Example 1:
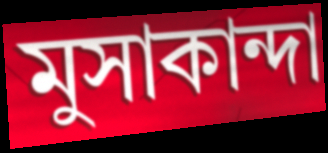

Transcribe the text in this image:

মুসাকান্দা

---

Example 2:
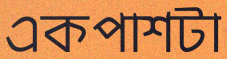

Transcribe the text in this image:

একপাশটা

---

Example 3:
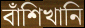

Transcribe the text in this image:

বাঁশিখানি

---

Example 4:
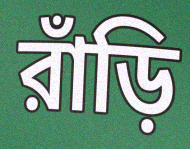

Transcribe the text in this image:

রাঁড়ি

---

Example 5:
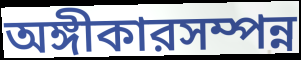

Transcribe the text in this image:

অঙ্গীকারসম্পন্ন